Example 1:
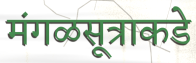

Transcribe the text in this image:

मंगळसूत्राकडे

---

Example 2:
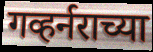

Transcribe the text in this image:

गव्हर्नराच्या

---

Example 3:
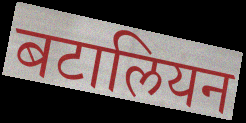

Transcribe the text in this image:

बटालियन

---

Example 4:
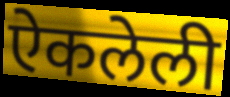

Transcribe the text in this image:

ऐकलेली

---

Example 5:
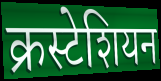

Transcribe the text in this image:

क्रस्टेशियन